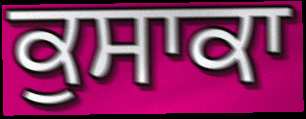
ਕੁਸਾਕਾ